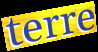
terre